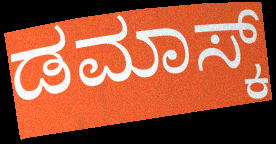
ಡಮಾಸ್ಕ್